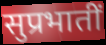
सुप्रभातीं